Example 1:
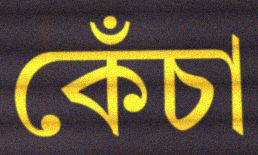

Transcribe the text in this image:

কেঁচা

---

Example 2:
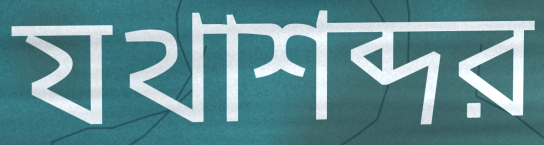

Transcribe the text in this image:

যথাশব্দর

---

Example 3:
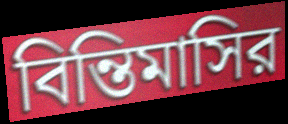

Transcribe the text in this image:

বিন্তিমাসির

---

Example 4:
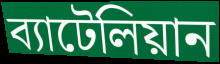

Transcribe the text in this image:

ব্যাটেলিয়ান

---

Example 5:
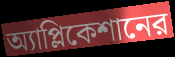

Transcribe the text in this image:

অ্যাপ্লিকেশানের